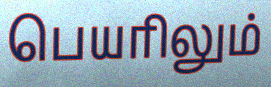
பெயரிலும்